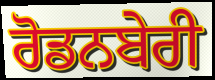
ਰੋਡਨਬੇਰੀ